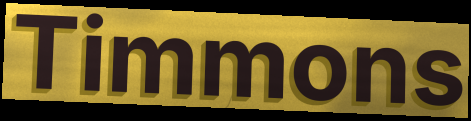
Timmons